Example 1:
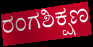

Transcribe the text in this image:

ರಂಗಶಿಕ್ಷಣ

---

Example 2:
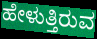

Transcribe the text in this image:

ಹೇಳುತ್ತಿರುವ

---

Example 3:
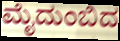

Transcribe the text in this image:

ಮೈದುಂಬಿದ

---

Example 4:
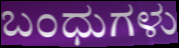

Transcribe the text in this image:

ಬಂಧುಗಳು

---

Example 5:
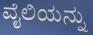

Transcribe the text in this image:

ವೈಲಿಯನ್ನು